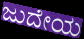
ಜುದೇಯ